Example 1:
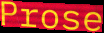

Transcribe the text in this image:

Prose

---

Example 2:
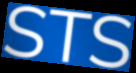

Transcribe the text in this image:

STS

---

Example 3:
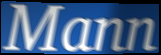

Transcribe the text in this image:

Mann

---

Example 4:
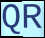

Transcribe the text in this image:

QR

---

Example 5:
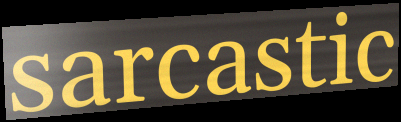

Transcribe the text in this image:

sarcastic